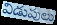
విడుపులు